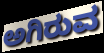
ಅಗಿರುವ